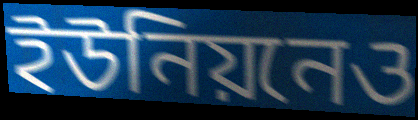
ইউনিয়নেও